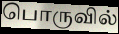
பொருவில்